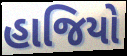
હાજિયો